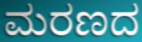
ಮರಣದ